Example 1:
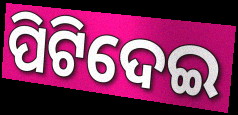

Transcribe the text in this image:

ପିଟିଦେଇ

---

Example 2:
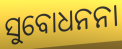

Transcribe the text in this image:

ସୁବୋଧନନା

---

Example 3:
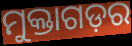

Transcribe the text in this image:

ମୁକ୍ତାଗଡ଼ର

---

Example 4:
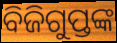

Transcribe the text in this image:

ବିଜିଗୁପ୍ତଙ୍କ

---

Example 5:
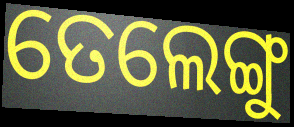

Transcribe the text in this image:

ତେଲେଙ୍ଗୁ